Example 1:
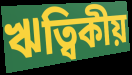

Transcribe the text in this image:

ঋত্বিকীয়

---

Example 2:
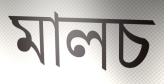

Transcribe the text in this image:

মালচ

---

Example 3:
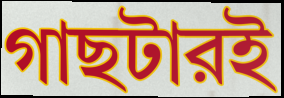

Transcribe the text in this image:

গাছটারই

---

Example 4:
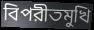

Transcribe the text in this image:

বিপরীতমুখি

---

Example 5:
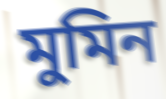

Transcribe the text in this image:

মুমিন